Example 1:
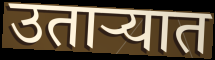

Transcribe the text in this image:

उताऱ्यात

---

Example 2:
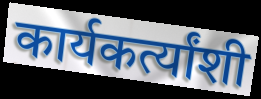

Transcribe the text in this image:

कार्यकर्त्यांशी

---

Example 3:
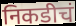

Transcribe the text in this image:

निकडीचं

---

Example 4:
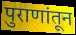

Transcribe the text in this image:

पुराणांतून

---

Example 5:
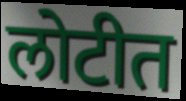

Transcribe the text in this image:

लोटीत